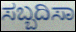
ಸಬ್ಬದಿಸಾ